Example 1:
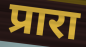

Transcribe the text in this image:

प्रारा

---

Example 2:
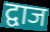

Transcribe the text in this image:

द्वाज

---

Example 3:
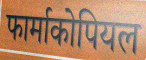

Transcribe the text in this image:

फार्माकोपियल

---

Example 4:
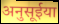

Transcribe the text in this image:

अनुसूईया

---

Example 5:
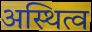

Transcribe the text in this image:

अस्थित्व